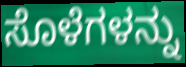
ಸೊಳೆಗಳನ್ನು